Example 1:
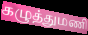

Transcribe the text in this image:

கழுத்துமணி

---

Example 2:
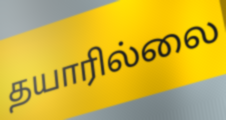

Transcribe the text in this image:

தயாரில்லை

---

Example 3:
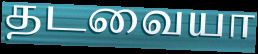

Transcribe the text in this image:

தடவையா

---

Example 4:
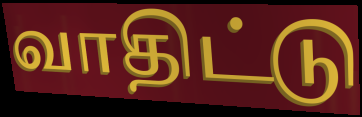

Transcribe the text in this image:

வாதிட்டு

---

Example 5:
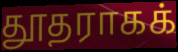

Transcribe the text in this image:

தூதராகக்